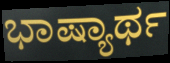
ಭಾಷ್ಯಾರ್ಥ